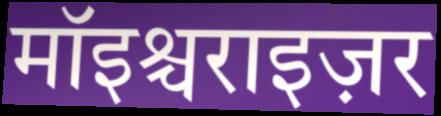
मॉइश्चराइज़र